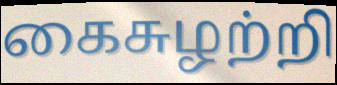
கைசுழற்றி